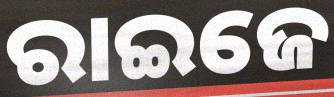
ରାଇଜେ